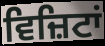
ਵਿਜ਼ਿਟਾਂ